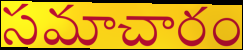
సమాచారం